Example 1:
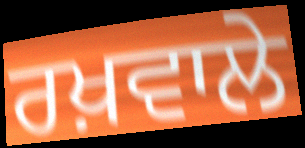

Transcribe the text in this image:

ਰਖ਼ਵਾਲੇ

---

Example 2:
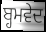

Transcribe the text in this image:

ਬ੍ਹਮਵੇਦ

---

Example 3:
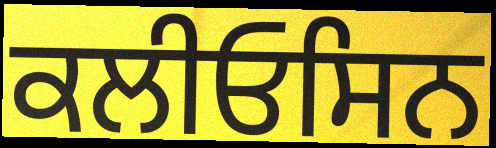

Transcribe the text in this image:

ਕਲੀਓਸਿਨ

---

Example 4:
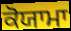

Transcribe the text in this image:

ਕੋਯਾਮਾ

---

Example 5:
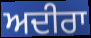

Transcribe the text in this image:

ਅਦੀਰਾ